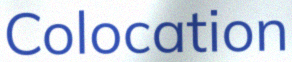
Colocation